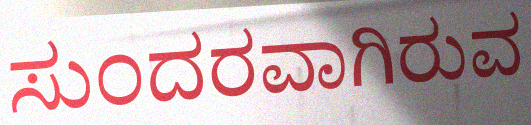
ಸುಂದರವಾಗಿರುವ